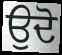
ਉਦੋ